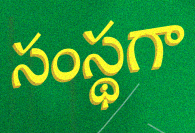
సంస్థగా